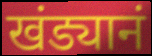
खंड्यानं